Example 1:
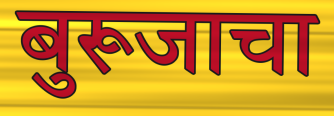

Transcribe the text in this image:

बुरूजाचा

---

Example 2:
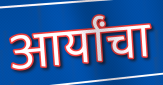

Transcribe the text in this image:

आर्यांचा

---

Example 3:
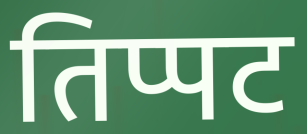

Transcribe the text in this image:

तिप्पट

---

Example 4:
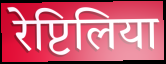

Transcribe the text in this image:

रेप्टिलिया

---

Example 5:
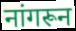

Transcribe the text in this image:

नांगरून